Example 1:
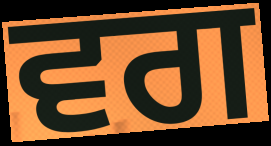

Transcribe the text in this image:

ਵਗ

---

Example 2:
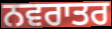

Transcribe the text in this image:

ਨਵਰਾਤਰ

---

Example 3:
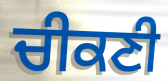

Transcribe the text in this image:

ਚੀਕਣੀ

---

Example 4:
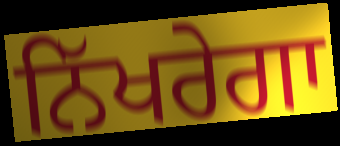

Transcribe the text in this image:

ਨਿੱਖਰੇਗਾ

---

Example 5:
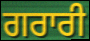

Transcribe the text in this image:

ਗਰਾਰੀ